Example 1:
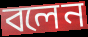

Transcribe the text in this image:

বলেন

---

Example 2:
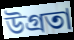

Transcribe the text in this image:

উগ্ৰতা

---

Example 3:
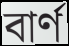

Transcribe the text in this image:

বাৰ্ণ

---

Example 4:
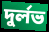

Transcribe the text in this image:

দুৰ্লভ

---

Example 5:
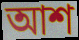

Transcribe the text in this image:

আশ